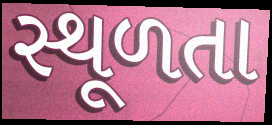
સ્થૂળતા